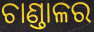
ଚାଣ୍ଡାଳର